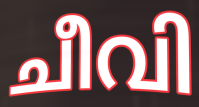
ചീവി